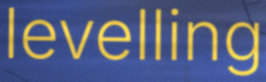
levelling